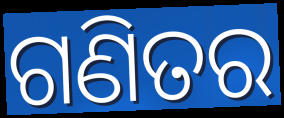
ଗଣିତର